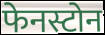
फेनस्टोन